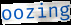
oozing